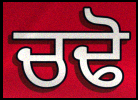
ਚਢੋ